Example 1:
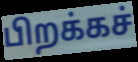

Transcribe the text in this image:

பிறக்கச்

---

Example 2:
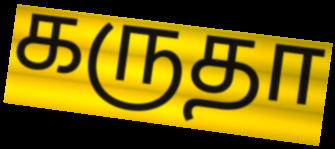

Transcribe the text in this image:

கருதா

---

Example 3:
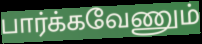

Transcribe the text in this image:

பார்க்கவேணும்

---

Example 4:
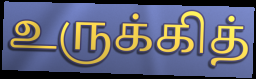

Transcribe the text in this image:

உருக்கித்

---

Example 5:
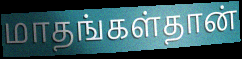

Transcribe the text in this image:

மாதங்கள்தான்